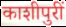
काशीपुरीं